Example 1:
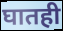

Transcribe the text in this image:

घातही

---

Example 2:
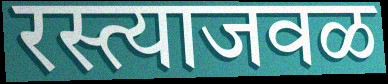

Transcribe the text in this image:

रस्त्याजवळ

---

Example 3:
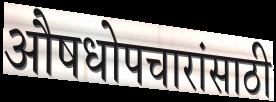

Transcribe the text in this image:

औषधोपचारांसाठी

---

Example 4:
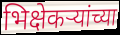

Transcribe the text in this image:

भिक्षेकऱ्यांच्या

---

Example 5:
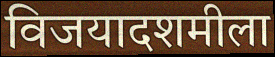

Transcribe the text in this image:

विजयादशमीला